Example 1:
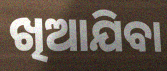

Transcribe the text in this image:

ଖିଆଯିବା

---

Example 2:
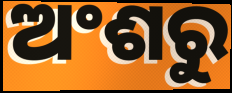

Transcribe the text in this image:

ଅଂଶରୁ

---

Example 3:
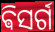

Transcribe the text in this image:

ଵିସର୍ଗ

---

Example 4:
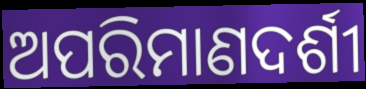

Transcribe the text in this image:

ଅପରିମାଣଦର୍ଶୀ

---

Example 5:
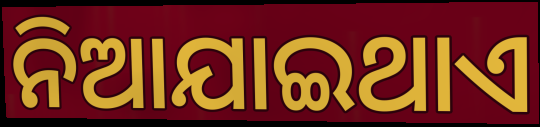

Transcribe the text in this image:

ନିଆଯାଇଥାଏ